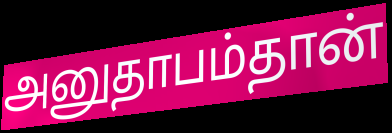
அனுதாபம்தான்